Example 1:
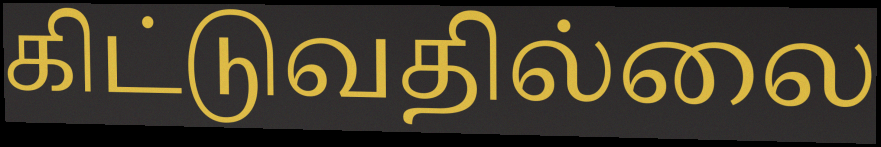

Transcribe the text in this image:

கிட்டுவதில்லை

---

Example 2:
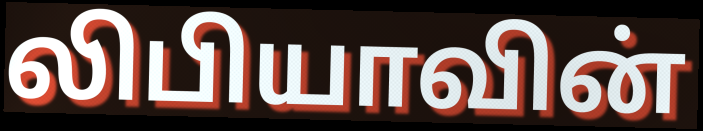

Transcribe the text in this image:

லிபியாவின்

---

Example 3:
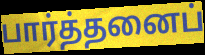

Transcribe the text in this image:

பார்த்தனைப்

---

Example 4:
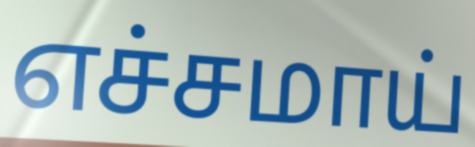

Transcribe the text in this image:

எச்சமாய்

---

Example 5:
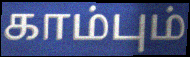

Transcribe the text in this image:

காம்பும்